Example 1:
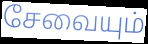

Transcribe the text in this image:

சேவையும்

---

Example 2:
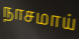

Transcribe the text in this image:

நாசமாய்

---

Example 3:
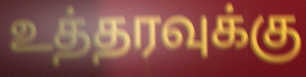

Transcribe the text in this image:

உத்தரவுக்கு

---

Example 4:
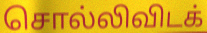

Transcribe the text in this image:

சொல்லிவிடக்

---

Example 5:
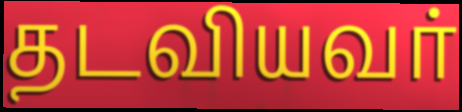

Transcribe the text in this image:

தடவியவர்